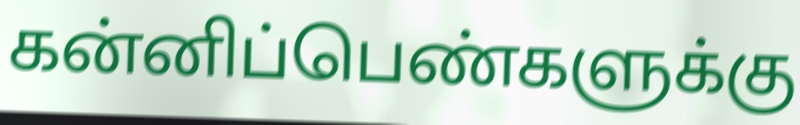
கன்னிப்பெண்களுக்கு